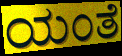
ಯಂತೆ